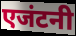
एजंटनी